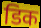
डिक